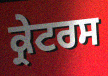
ਕ੍ਰੇਟਰਸ